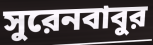
সুরেনবাবুর